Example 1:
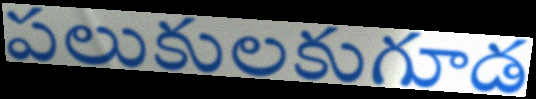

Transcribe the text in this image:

పలుకులకుగూడ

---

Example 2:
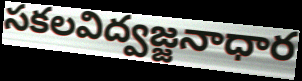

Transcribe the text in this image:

సకలవిద్వజ్జనాధార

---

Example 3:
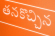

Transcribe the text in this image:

తనకొచ్చిన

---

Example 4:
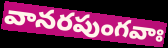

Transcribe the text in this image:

వానరపుంగవాః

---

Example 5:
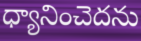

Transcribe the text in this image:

ధ్యానించెదను